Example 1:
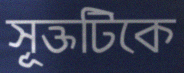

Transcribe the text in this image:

সূক্তটিকে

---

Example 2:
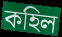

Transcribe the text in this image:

কহিল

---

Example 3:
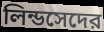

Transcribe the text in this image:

লিন্ডসেদের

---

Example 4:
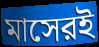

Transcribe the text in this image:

মাসেরই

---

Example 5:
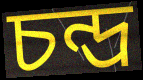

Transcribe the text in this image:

চন্দ্র